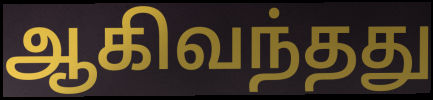
ஆகிவந்தது